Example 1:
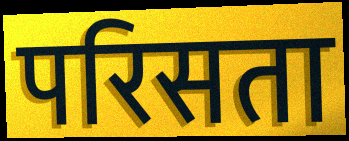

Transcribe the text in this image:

परिसता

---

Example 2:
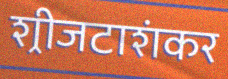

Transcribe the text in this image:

श्रीजटाशंकर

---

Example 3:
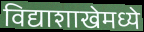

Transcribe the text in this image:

विद्याशाखेमध्ये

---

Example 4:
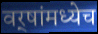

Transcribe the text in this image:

वर्षांमध्येच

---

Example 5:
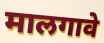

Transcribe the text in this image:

मालगावे